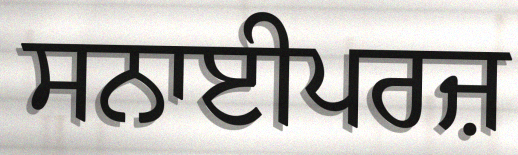
ਸਨਾਈਪਰਜ਼